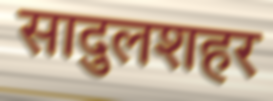
सादुलशहर